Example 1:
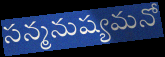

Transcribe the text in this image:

సన్మనుష్యమనో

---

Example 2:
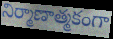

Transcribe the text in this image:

నిర్మాణాత్మకంగా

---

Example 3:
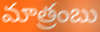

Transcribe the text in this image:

మాత్రంబు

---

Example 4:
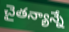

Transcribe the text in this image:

చైతన్యాన్నే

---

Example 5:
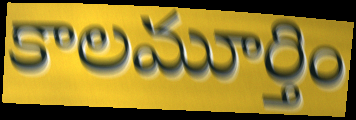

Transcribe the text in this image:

కాలమూర్తిం